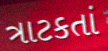
ત્રાટકતાં